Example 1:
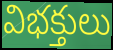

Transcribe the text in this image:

విభక్తులు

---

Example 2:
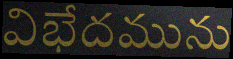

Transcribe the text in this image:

విభేదమును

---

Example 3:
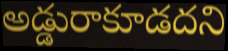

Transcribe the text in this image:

అడ్డురాకూడదని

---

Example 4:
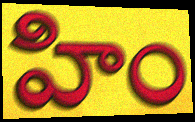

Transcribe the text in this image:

హిం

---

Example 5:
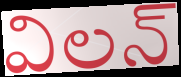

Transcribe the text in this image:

విలన్